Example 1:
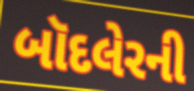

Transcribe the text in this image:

બૉદલેરની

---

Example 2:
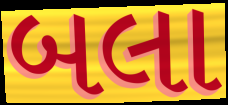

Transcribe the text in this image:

બલા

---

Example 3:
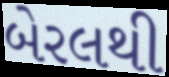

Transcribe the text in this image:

બેરલથી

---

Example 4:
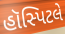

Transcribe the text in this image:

હૉસ્પિટલે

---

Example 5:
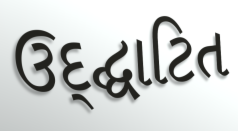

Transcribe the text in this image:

ઉદ્દ્ઘાટિત